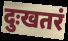
दुःखतरं